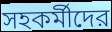
সহকর্মীদের